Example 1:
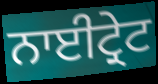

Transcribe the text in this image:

ਨਾਈਟ੍ਰੇਟ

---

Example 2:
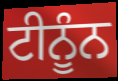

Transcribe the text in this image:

ਟੀਨੂੰਨ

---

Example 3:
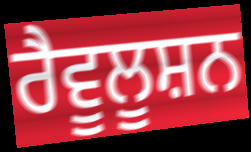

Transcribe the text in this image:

ਰੈਵੂਲੂਸ਼ਨ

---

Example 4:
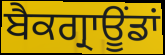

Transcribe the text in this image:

ਬੈਕਗ੍ਰਾਊਂਡਾਂ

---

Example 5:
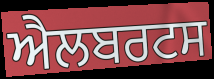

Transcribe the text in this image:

ਐਲਬਰਟਸ